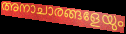
അനാചാരങ്ങളേയും